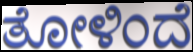
ತೋಳಿಂದೆ